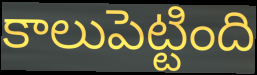
కాలుపెట్టింది